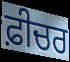
ਫ਼ੀਚਰ